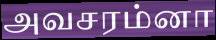
அவசரம்னா